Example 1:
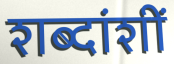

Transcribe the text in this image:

शब्दांशीं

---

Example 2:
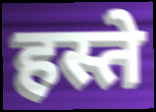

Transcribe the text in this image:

हस्ते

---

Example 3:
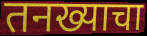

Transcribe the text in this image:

तनख्याचा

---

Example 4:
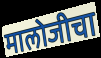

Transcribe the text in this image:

मालोजीचा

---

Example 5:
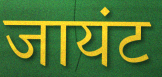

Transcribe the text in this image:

जायंट